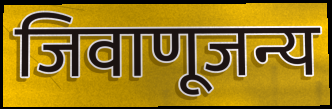
जिवाणूजन्य